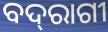
ବଦ୍‌ରାଗୀ